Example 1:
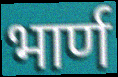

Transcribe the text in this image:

भार्ण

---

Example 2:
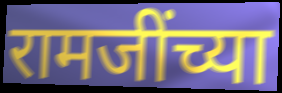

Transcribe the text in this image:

रामजींच्या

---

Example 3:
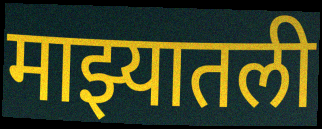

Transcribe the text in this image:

माझ्यातली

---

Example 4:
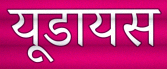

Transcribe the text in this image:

यूडायस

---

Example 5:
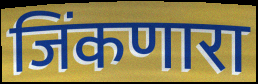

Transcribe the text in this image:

जिंकणारा